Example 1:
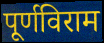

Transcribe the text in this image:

पूर्णविराम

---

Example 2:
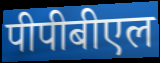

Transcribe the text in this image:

पीपीबीएल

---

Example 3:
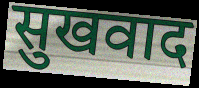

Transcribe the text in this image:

सुखवाद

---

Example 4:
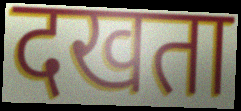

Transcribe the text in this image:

दखता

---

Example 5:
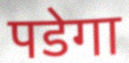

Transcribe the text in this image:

पडेगा